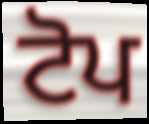
ਟੋਪ